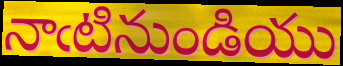
నాఁటినుండియు